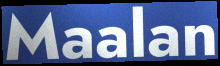
Maalan